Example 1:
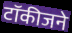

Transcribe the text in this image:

टॉकीजने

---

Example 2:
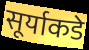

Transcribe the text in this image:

सूर्याकडे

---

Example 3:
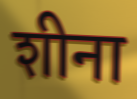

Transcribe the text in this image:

शीना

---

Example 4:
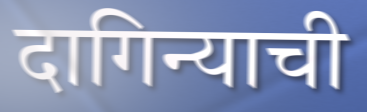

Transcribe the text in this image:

दागिन्याची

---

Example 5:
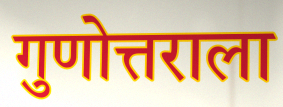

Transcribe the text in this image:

गुणोत्तराला